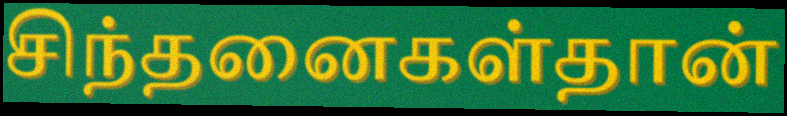
சிந்தனைகள்தான்